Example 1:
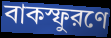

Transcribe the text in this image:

বাকস্ফুরণে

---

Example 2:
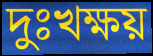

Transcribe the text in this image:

দুঃখক্ষয়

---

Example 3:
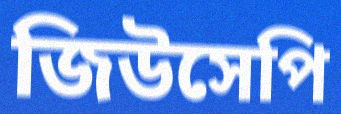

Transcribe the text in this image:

জিউসেপি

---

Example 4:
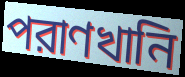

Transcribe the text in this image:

পরাণখানি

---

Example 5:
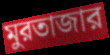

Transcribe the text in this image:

মুরতাজার